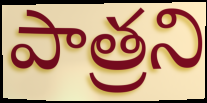
పాత్రని